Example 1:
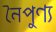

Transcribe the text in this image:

নৈপুণ্য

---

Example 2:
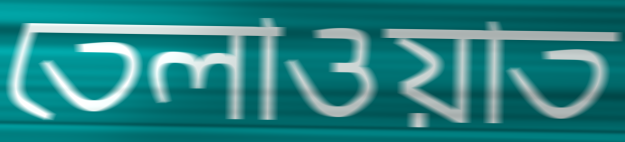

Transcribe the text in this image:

তেলাওয়াত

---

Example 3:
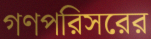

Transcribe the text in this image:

গণপরিসরের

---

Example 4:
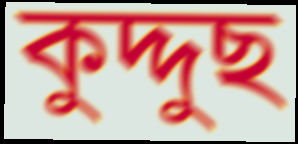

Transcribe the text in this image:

কুদ্দুছ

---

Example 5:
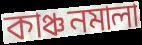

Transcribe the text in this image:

কাঞ্চনমালা